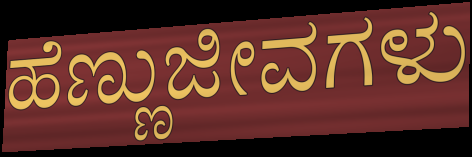
ಹೆಣ್ಣುಜೀವಗಳು